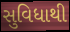
સુવિધાથી